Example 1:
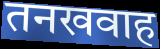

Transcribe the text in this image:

तनखवाह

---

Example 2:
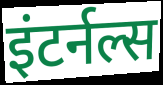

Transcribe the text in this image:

इंटर्नल्स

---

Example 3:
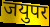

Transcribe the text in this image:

जयुपर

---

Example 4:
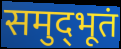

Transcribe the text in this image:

समुद्भूतं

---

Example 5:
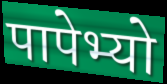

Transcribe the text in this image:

पापेभ्यो